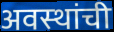
अवस्थांची